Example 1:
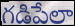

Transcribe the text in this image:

గడిపేలా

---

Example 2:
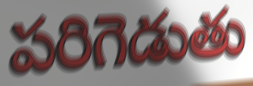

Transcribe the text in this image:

పరిగెడుతు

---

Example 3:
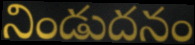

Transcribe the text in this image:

నిండుదనం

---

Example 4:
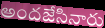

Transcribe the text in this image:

అందజేసినారు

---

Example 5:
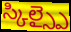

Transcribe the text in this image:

స్కిల్స్పై